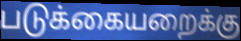
படுக்கையறைக்கு